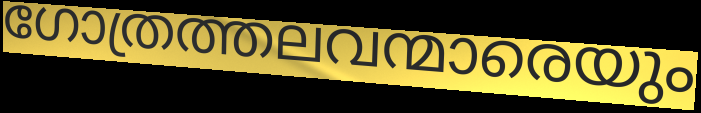
ഗോത്രത്തലവന്മാരെയും